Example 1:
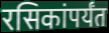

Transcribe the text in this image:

रसिकांपर्यंत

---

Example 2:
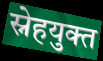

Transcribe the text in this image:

स्नेहयुक्त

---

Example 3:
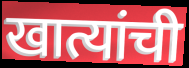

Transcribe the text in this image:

खात्यांची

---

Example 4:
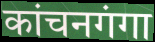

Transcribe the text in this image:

कांचनगंगा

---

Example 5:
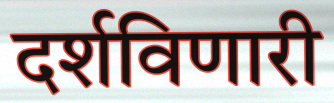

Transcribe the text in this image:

दर्शविणारी